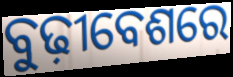
ବୁଢ଼ୀବେଶରେ